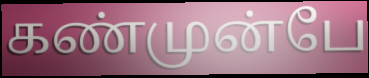
கண்முன்பே